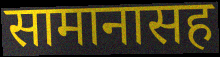
सामानासह